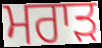
ਮਰਾੜ